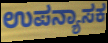
ಉಪನ್ಯಾಸಕ